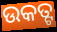
ଉକତ୍ଟ